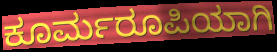
ಕೂರ್ಮರೂಪಿಯಾಗಿ